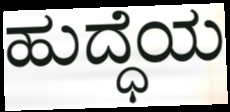
ಹುದ್ಧೆಯ